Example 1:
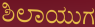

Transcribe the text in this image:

ಶಿಲಾಯುಗ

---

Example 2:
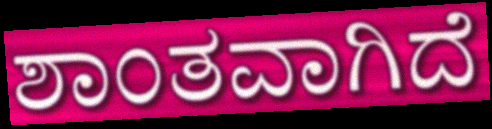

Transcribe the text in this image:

ಶಾಂತವಾಗಿದೆ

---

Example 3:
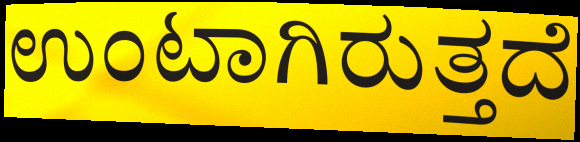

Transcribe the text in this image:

ಉಂಟಾಗಿರುತ್ತದೆ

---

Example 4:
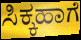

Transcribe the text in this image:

ಸಿಕ್ಕಹಾಗೆ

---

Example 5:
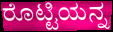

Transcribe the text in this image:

ರೊಟ್ಟಿಯನ್ನ